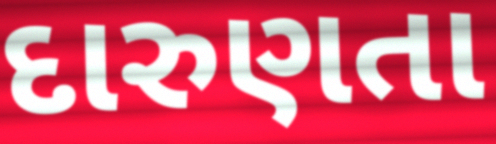
દારુણતા